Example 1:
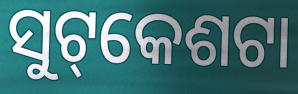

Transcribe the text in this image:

ସୁଟ୍‌କେଶଟା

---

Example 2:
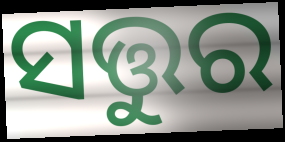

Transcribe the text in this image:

ସତ୍ତୁର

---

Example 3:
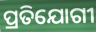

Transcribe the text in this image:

ପ୍ରତିଯୋଗୀ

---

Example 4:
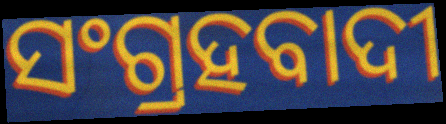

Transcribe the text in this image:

ସଂଗ୍ରହବାଦୀ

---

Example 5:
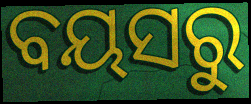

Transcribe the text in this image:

ବୟସରୁ